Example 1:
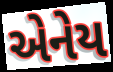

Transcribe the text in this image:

એનેય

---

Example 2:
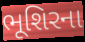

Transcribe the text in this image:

ભૂશિરના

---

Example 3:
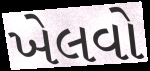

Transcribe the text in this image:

ખેલવો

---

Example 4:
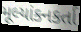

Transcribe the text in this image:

મૂલ્યાંકનકર્તા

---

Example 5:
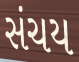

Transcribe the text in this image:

સંચય